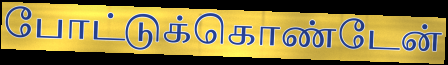
போட்டுக்கொண்டேன்